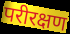
परीरक्षण